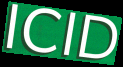
ICID